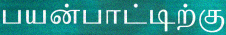
பயன்பாட்டிற்கு